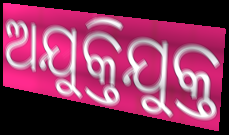
ଅଯୁକ୍ତିଯୁକ୍ତ